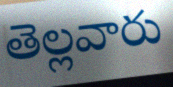
తెల్లవారు